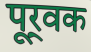
पूर्वक